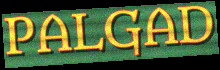
PALGAD